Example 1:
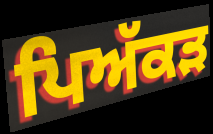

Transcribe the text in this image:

ਪਿਅੱਕੜ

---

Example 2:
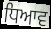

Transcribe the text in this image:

ਧਿਆਵ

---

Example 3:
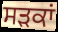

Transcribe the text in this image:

ਸਡ਼ਕਾਂ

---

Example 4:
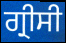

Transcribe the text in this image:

ਗ੍ਰੀਸੀ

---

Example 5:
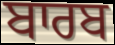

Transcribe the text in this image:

ਬਾਰਬ